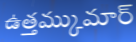
ఉత్తమ్కుమార్